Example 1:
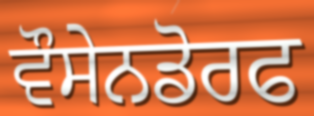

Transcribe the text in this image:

ਵੌਸੇਨਡੋਰਫ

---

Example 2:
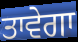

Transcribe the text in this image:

ਤਾਵੇਗਾ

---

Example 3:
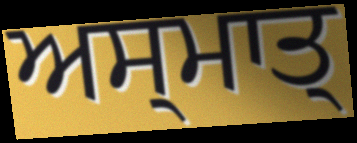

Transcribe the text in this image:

ਅਸ੍ਮਾਤ੍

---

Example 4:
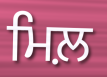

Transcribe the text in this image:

ਮਿਲ਼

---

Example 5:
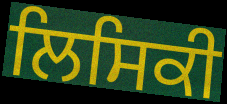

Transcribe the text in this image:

ਲਿਸਿਕੀ